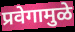
प्रवेगामुळे